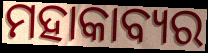
ମହାକାବ୍ୟର